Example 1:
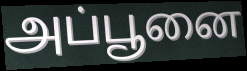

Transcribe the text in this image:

அப்பூனை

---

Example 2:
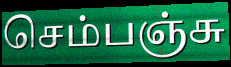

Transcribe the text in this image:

செம்பஞ்சு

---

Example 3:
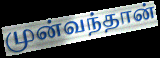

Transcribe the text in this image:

முன்வந்தான்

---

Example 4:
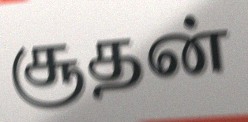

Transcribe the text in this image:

சூதன்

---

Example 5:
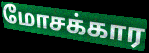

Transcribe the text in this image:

மோசக்கார